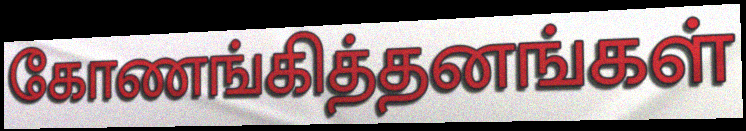
கோணங்கித்தனங்கள்